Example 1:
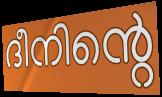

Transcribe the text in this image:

ദീനിന്റെ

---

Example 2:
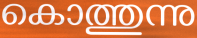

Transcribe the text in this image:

കൊത്തുന്നു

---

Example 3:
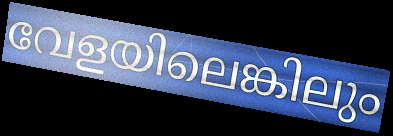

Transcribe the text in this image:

വേളയിലെങ്കിലും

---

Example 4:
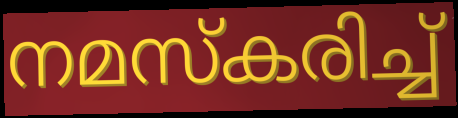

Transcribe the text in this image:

നമസ്കരിച്ച്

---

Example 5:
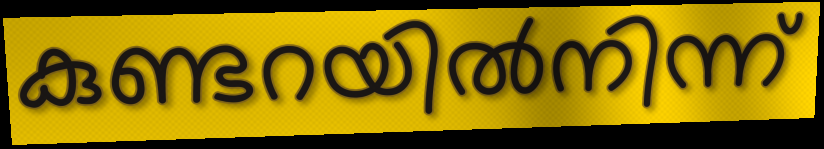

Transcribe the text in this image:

കുണ്ടറയിൽനിന്ന്